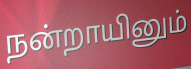
நன்றாயினும்